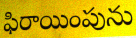
ఫిరాయింపును